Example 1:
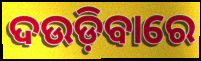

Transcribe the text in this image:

ଦଉଡ଼ିବାରେ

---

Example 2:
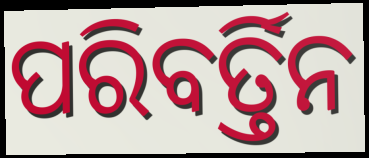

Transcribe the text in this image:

ପରିବର୍ତ୍ତିନ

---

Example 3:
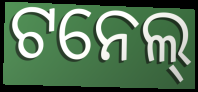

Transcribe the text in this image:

ଟନେଲ୍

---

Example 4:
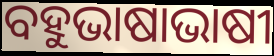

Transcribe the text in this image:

ବହୁଭାଷାଭାଷୀ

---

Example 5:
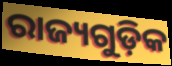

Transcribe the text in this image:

ରାଜ୍ୟଗୁଡ଼ିକ